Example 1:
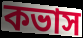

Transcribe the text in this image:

কভাস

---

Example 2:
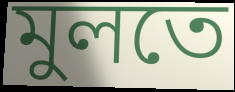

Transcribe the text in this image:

মুলতে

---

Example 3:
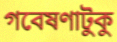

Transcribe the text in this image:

গবেষণাটুকু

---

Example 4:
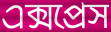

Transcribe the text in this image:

এক্সপ্রেস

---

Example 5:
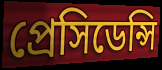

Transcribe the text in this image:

প্রেসিডেন্সি